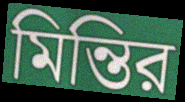
মিন্তির